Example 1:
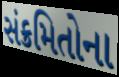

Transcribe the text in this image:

સંક્રમિતોના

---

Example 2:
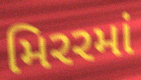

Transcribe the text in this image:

મિરરમાં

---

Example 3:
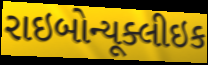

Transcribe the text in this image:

રાઇબોન્યૂક્લીઇક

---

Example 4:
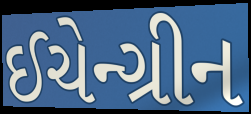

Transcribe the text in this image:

ઈચેન્ગ્રીન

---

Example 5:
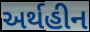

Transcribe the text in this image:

અર્થહીન